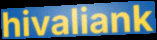
hivaliank